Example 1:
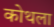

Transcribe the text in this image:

कोथला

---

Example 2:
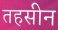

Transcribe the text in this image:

तहसीन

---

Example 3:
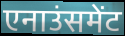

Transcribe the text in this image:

एनाउंसमेंट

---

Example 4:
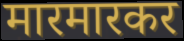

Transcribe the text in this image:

मारमारकर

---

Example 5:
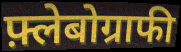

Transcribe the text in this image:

फ़्लेबोग्राफी